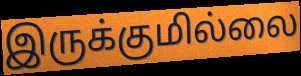
இருக்குமில்லை